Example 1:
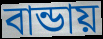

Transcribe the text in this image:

বান্ডায়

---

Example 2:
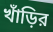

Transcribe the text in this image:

খাঁড়ির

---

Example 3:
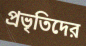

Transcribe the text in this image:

প্রভৃতিদের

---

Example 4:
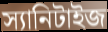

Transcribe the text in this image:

স্যানিটাইজ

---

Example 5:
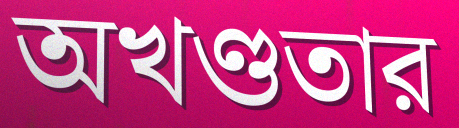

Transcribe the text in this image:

অখণ্ডতার